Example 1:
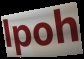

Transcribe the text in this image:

Ipoh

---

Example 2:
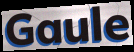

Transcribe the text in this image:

Gaule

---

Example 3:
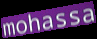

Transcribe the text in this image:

mohassa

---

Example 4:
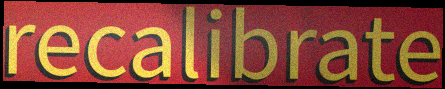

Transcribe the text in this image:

recalibrate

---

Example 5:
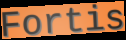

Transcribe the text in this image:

Fortis